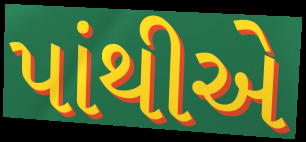
પાંથીએ